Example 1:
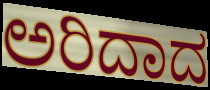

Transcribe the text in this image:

ಅರಿದಾದ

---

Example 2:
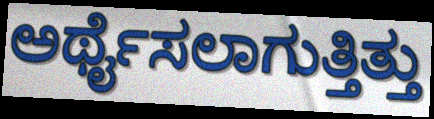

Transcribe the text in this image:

ಅರ್ಥೈಸಲಾಗುತ್ತಿತ್ತು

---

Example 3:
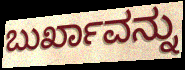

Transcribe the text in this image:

ಬುರ್ಖಾವನ್ನು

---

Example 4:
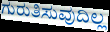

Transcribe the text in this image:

ಗುರುತಿಸುವುದಿಲ್ಲ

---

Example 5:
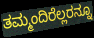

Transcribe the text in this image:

ತಮ್ಮಂದಿರೆಲ್ಲರನ್ನೂ